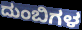
ದುಂಬಿಗಳ